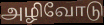
அழிவோடு